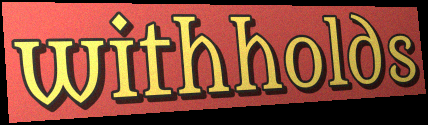
withholds